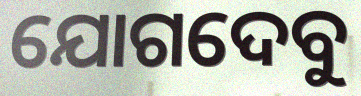
ଯୋଗଦେବୁ